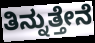
ತಿನ್ನುತ್ತೇನೆ